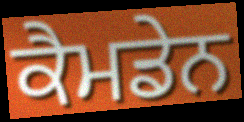
ਕੈਮਡੇਨ